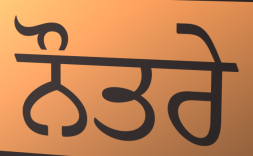
ਨੌਤਰੇ